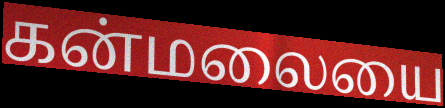
கன்மலையை